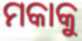
ମକାକୁ